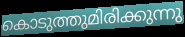
കൊടുത്തുമിരിക്കുന്നു